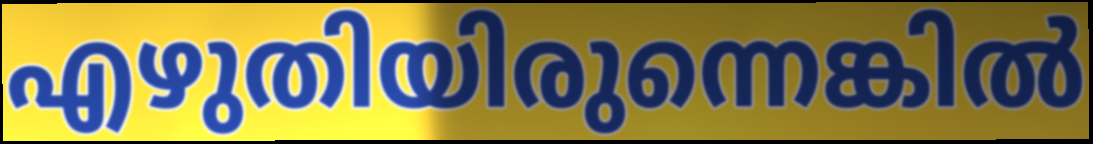
എഴുതിയിരുന്നെങ്കിൽ